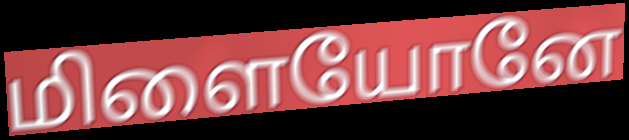
மிளையோனே